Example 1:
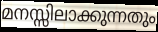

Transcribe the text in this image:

മനസ്സിലാക്കുന്നതും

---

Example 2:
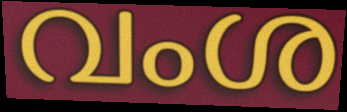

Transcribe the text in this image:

വംശ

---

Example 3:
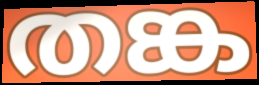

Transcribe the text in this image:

തങ്ക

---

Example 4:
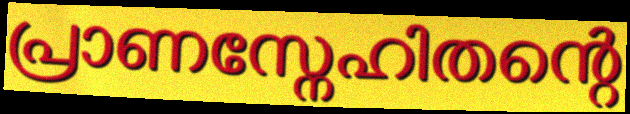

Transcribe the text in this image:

പ്രാണസ്നേഹിതന്റെ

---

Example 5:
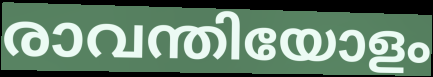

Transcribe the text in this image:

രാവന്തിയോളം